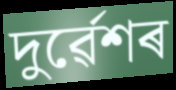
দুৰ্ৱেশৰ